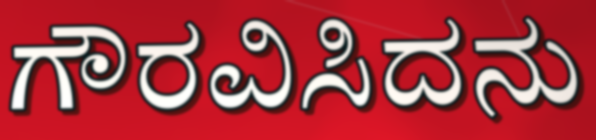
ಗೌರವಿಸಿದನು